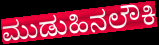
ಮುಡುಹಿನಲೌಕಿ